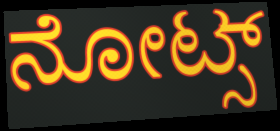
ನೋಟ್ಸ್